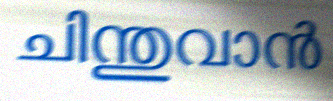
ചിന്തുവാൻ